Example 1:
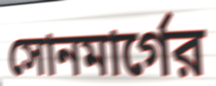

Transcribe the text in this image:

সোনমার্গের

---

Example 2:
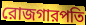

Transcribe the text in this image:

রোজগারপতি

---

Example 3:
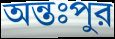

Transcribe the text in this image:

অন্তঃপুর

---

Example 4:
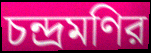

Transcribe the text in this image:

চন্দ্রমণির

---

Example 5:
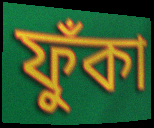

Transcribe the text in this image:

ফুঁকা